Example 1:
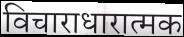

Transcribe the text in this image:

विचाराधारात्मक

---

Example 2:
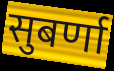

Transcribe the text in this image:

सुबर्णा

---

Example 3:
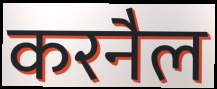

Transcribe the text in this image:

करनैल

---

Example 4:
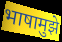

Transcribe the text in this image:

भाषामुझे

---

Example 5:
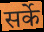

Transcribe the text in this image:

सर्के